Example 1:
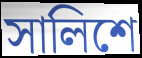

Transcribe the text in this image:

সালিশে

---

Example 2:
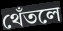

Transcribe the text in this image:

থেঁতলে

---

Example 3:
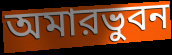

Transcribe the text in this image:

অমারভুবন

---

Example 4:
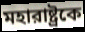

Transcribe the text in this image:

মহারাষ্ট্রকে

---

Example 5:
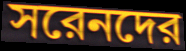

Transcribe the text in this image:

সরেনদের